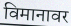
विमानावर